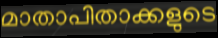
മാതാപിതാക്കളുടെ